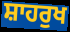
ਸ਼ਾਹਰੁਖ